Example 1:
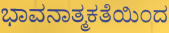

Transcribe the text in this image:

ಭಾವನಾತ್ಮಕತೆಯಿಂದ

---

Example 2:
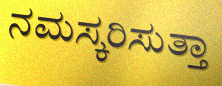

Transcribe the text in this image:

ನಮಸ್ಕರಿಸುತ್ತಾ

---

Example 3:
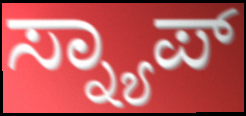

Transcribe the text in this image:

ಸ್ನ್ಯಾಪ್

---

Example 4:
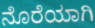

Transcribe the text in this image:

ನೊರೆಯಾಗಿ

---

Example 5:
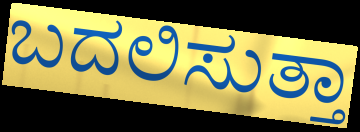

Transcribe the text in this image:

ಬದಲಿಸುತ್ತಾ